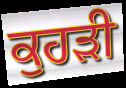
ਕੁਹੜੀ